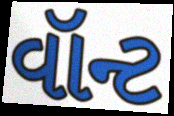
વૉન્ટ